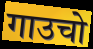
गाउचो